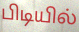
பிடியில்